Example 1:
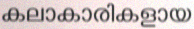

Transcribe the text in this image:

കലാകാരികളായ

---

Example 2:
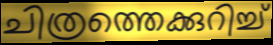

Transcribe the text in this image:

ചിത്രത്തെക്കുറിച്ച്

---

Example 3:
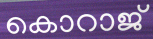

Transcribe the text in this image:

കൊറാജ്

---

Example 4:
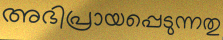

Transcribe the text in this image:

അഭിപ്രായപ്പെടുന്നതു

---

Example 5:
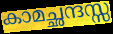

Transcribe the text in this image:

കാമച്ഛന്ദസ്സ